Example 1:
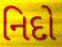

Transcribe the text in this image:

નિદો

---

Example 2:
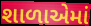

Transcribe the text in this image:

શાળાએમાં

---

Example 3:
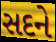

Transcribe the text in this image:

સદને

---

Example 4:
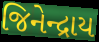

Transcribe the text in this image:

જિનેન્દ્રાય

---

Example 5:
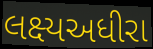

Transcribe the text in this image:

લક્ષ્યઅધીરા